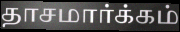
தாசமார்க்கம்